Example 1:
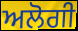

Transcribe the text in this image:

ਅਲੋਗੀ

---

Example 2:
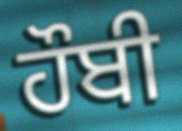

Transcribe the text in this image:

ਹੌਬੀ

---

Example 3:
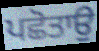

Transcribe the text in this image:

ਪਛੋਤਾਉ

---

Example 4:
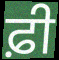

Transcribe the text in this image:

ਫ਼ੀ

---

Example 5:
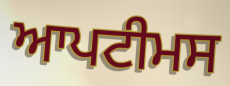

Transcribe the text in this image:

ਆਪਟੀਮਸ